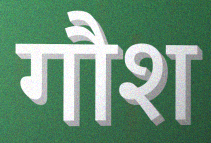
गौश